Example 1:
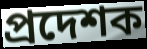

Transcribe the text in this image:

প্ৰদেশক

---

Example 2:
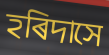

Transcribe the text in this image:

হৰিদাসে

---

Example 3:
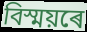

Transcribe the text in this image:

বিস্ময়ৰে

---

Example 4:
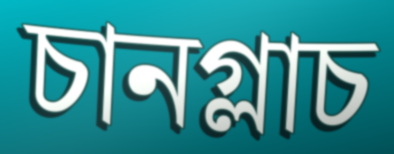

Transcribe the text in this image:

চানগ্লাচ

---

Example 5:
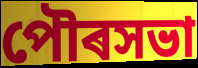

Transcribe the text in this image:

পৌৰসভা